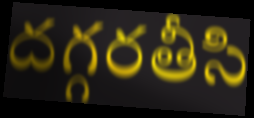
దగ్గరతీసి